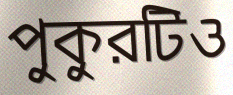
পুকুরটিও